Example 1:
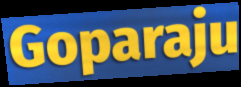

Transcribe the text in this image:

Goparaju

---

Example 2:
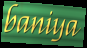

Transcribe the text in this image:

baniya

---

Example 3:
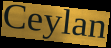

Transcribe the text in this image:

Ceylan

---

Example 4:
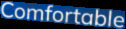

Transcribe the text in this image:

Comfortable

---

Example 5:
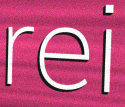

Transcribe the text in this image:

rei